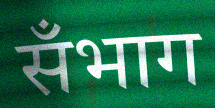
सँभाग